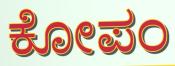
ಕೋಪಂ